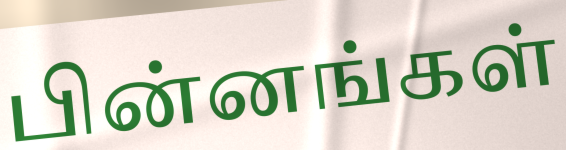
பின்னங்கள்